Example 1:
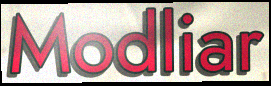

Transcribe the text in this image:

Modliar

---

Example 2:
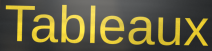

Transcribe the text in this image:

Tableaux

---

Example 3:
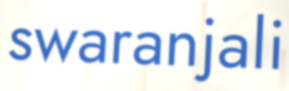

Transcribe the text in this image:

swaranjali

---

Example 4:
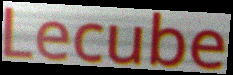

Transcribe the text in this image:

Lecube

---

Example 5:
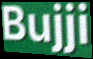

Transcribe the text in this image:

Bujji